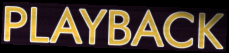
PLAYBACK